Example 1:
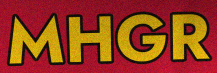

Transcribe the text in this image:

MHGR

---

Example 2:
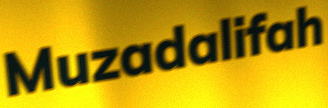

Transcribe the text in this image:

Muzadalifah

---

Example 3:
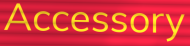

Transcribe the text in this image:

Accessory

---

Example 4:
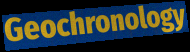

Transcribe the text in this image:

Geochronology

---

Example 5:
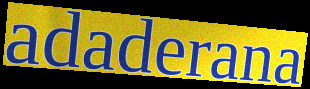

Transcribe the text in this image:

adaderana